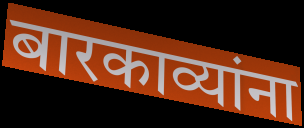
बारकाव्यांना